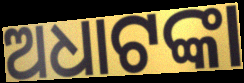
ଅଧାଟଙ୍କା